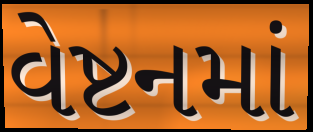
વેષ્ટનમાં